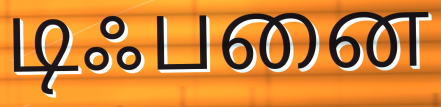
டிஃபனை